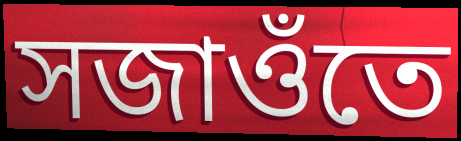
সজাওঁতে